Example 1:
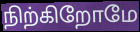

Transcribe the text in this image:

நிற்கிறோமே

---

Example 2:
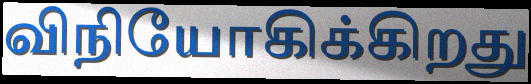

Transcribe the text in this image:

விநியோகிக்கிறது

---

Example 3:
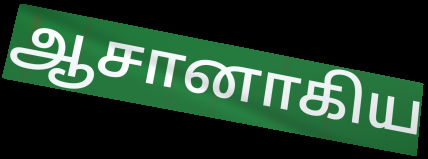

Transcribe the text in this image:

ஆசானாகிய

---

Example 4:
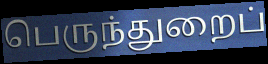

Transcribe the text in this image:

பெருந்துறைப்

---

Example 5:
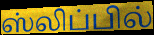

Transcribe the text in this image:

ஸ்லிப்பில்